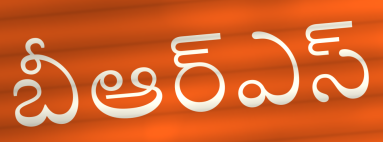
బీఆర్ఎస్